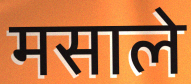
मसाले